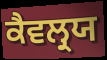
ਕੈਵਲ੍ਰਯ